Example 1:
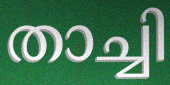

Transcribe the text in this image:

താച്ചി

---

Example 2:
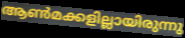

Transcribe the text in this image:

ആൺമക്കളില്ലായിരുന്നു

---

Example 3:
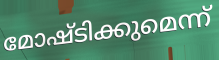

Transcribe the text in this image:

മോഷ്ടിക്കുമെന്ന്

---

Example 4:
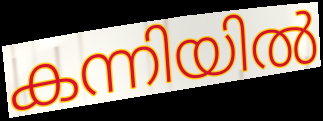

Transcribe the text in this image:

കന്നിയിൽ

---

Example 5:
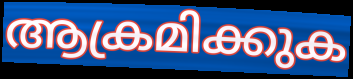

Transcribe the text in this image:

ആക്രമിക്കുക